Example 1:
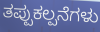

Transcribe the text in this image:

ತಪ್ಪುಕಲ್ಪನೆಗಳು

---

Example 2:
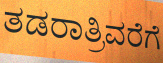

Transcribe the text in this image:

ತಡರಾತ್ರಿವರೆಗೆ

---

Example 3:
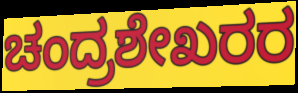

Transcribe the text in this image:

ಚಂದ್ರಶೇಖರರ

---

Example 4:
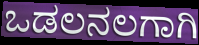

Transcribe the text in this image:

ಒಡಲನಲಗಾಗಿ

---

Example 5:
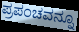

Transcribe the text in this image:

ಪ್ರಪಂಚವನ್ನೂ